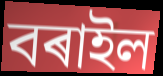
বৰাইল